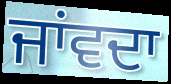
ਜਾਂਵਦਾ